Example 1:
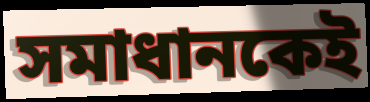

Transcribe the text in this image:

সমাধানকেই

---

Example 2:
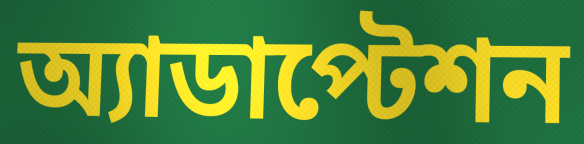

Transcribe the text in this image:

অ্যাডাপ্টেশন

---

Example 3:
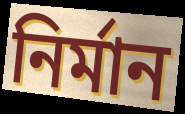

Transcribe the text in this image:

নির্মান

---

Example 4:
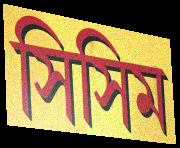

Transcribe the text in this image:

সিসিম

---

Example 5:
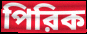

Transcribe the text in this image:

পিরিক